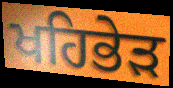
ਖਹਿਭੇੜ